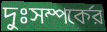
দুঃসম্পর্কের